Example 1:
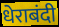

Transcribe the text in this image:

धेराबंदी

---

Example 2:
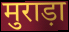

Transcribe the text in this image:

मुराड़ा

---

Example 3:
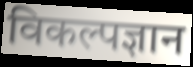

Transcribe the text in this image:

विकल्पज्ञान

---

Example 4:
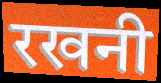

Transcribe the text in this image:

रखनी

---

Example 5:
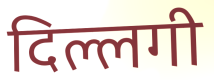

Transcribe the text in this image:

दिल्‍लगी